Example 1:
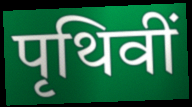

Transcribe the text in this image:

पृथिवीं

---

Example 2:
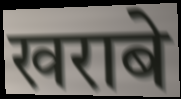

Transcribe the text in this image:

खराबे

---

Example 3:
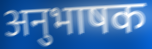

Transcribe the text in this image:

अनुभाषक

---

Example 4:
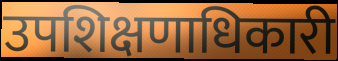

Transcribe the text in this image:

उपशिक्षणाधिकारी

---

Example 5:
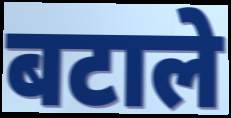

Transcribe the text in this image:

बटाले